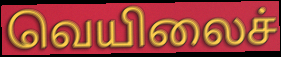
வெயிலைச்